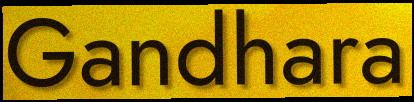
Gandhara